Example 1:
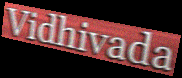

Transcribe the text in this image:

Vidhivada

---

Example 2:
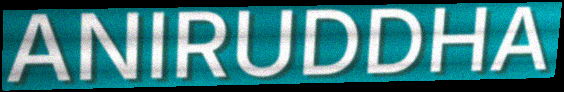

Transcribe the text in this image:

ANIRUDDHA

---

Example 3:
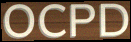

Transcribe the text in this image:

OCPD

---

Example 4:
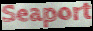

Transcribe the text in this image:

Seaport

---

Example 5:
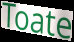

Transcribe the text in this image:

Toate